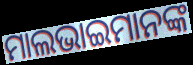
ମାଲଭାଇମାନଙ୍କ